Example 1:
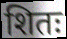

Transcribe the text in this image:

शितः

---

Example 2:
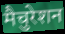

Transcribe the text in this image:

मैचुरेशन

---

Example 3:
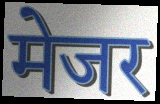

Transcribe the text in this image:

मेजर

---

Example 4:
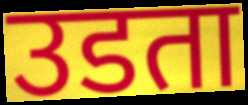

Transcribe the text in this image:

उडता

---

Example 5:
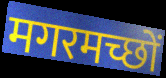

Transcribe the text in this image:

मगरमच्छों